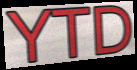
YTD